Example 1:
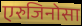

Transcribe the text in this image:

एरुजिनोसा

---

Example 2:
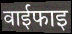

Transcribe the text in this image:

वाईफाइ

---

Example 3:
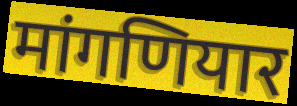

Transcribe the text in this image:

मांगणियार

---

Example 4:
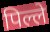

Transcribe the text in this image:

पिल्ले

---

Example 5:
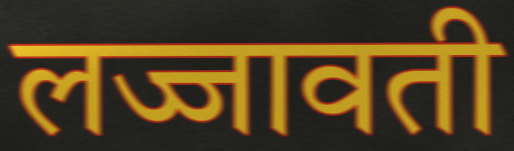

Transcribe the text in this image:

लज्जावती